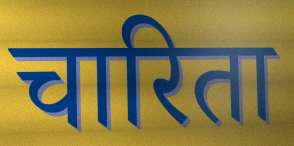
चारिता